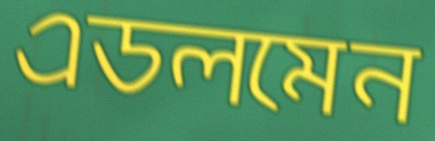
এডলমেন